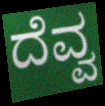
ದೆವ್ವ